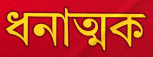
ধনাত্মক